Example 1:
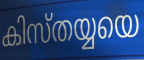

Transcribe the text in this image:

കിസ്തയ്യയെ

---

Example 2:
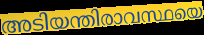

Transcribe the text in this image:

അടിയന്തിരാവസ്ഥയെ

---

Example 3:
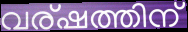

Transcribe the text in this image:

വര്ഷത്തിന്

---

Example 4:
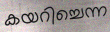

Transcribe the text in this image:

കയറിച്ചെന്ന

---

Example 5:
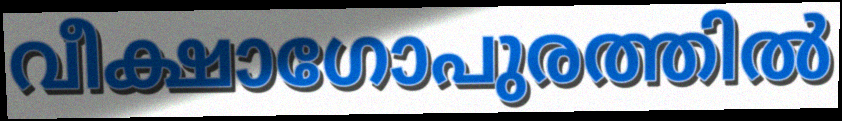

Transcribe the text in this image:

വീക്ഷാഗോപുരത്തിൽ